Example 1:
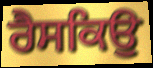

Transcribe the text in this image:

ਰੈਸਕਿਉ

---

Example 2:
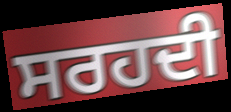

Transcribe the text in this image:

ਸਰਹਦੀ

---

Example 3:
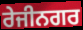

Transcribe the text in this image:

ਰੇਜੀਨਗਰ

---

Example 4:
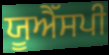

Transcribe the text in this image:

ਯੂਐੱਸਪੀ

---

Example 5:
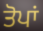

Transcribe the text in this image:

ਤੋਪਾਂ